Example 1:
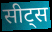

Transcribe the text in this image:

सीट्स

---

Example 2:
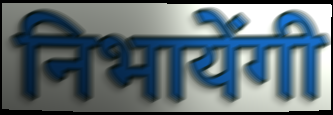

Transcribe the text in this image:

निभायेंगी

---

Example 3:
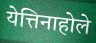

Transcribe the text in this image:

येत्तिनाहोले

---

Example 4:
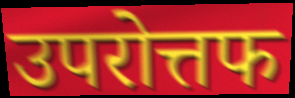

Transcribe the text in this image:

उपरोत्तफ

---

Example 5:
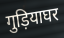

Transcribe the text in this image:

गुड़ियाघर